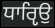
ਧਾਰੵਿਉ